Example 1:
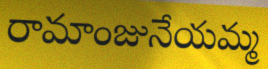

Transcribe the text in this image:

రామాంజునేయమ్మ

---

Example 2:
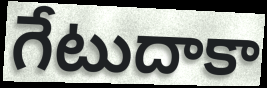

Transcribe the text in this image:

గేటుదాకా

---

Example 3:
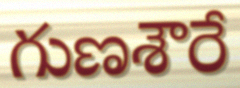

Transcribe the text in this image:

గుణశౌరే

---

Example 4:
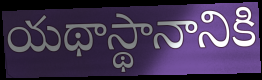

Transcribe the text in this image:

యథాస్థానానికి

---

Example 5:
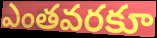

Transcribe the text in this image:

ఎంతవరకూ